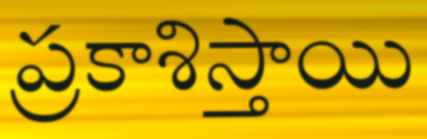
ప్రకాశిస్తాయి